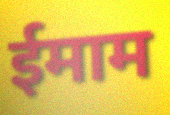
ईमाम